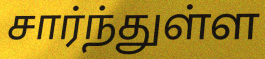
சார்ந்துள்ள